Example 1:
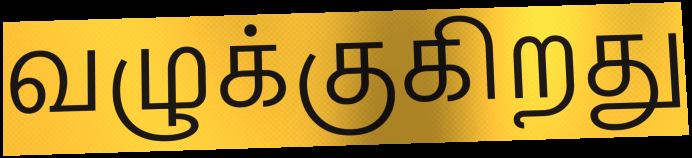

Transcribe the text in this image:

வழுக்குகிறது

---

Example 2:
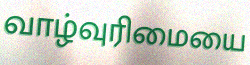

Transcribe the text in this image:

வாழ்வுரிமையை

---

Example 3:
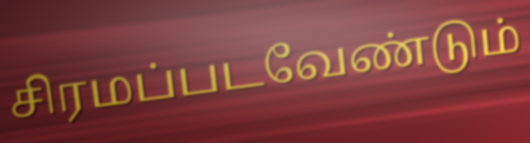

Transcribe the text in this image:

சிரமப்படவேண்டும்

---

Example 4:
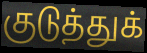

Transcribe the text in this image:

குடுத்துக்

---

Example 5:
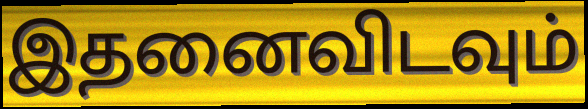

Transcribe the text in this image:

இதனைவிடவும்